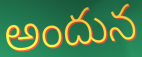
అందున